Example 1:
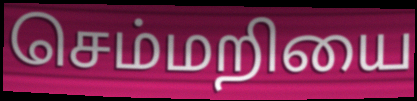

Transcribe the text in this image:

செம்மறியை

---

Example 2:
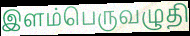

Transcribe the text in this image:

இளம்பெருவழுதி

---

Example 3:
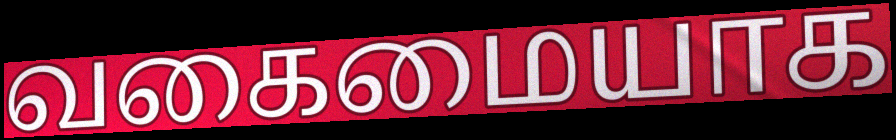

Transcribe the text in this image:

வகைமையாக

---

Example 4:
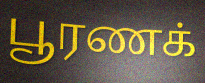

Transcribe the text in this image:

பூரணக்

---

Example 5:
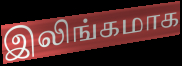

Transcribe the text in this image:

இலிங்கமாக